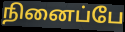
நினைப்பே